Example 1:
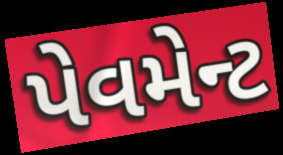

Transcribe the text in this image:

પેવમેન્ટ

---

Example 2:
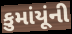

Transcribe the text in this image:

કુમાંયૂંની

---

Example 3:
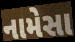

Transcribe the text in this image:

નામેસા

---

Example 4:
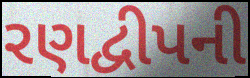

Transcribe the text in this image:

રણદ્વીપની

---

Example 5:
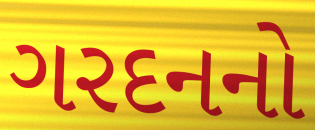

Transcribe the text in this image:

ગરદનનો